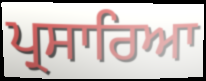
ਪ੍ਰਸਾਰਿਆ